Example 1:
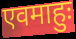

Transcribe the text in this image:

एवमाहुः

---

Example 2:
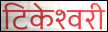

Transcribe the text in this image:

टिकेश्वरी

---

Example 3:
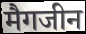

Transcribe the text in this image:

मैगजीन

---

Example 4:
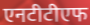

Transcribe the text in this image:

एनटीटीएफ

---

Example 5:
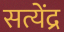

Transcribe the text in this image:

सत्येंद्र